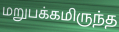
மறுபக்கமிருந்த